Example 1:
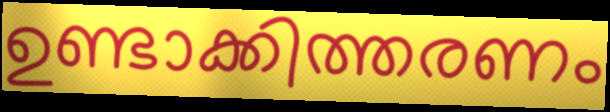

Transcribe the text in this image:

ഉണ്ടാക്കിത്തരണം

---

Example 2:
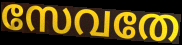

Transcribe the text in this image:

സേവതേ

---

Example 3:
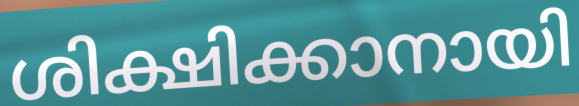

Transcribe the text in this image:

ശിക്ഷിക്കാനായി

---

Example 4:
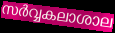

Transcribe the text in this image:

സർവ്വകലാശാല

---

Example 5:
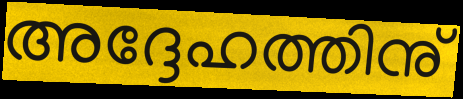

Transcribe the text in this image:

അദ്ദേഹത്തിനു്